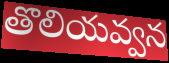
తొలియవ్వన